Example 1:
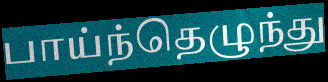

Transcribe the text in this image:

பாய்ந்தெழுந்து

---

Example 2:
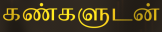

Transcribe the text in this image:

கண்களுடன்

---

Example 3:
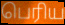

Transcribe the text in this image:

பெரிய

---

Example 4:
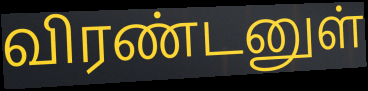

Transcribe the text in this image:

விரண்டனுள்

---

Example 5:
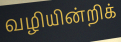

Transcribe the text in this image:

வழியின்றிக்